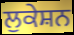
ਲੁਕੇਸ਼ਨ